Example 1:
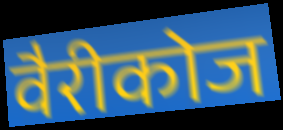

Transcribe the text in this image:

वैरीकोज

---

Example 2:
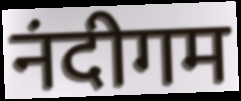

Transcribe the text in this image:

नंदीगम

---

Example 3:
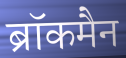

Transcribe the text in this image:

ब्रॉकमैन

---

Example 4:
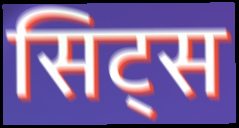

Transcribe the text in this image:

सिट्स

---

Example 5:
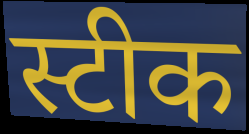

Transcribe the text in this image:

स्टीक